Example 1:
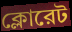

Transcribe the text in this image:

ক্লোরেট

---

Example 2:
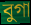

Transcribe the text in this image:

বুগা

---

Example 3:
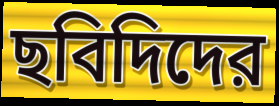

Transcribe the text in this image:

ছবিদিদের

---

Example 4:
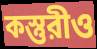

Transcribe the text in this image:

কস্তুরীও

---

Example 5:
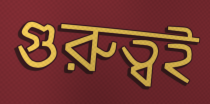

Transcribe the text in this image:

গুরুত্বই